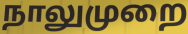
நாலுமுறை